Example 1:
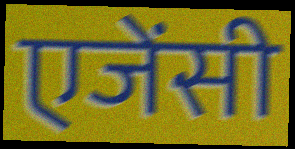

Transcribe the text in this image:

एजेंसी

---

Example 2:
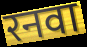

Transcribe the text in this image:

रनवा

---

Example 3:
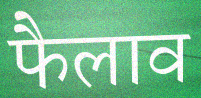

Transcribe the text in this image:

फैलाव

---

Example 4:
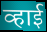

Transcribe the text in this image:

व्हाई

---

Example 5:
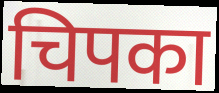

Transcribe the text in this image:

चिपका